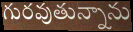
గురవుతున్నాను